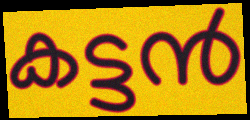
കട്ടൻ